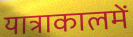
यात्राकालमें